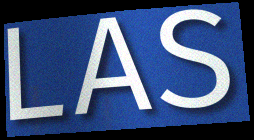
LAS